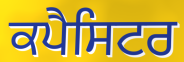
ਕਪੈਸਿਟਰ